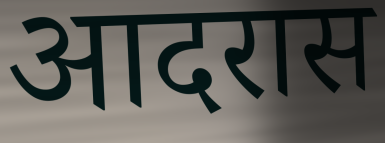
आदरास